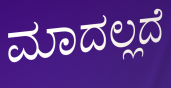
ಮಾದಲ್ಲದೆ